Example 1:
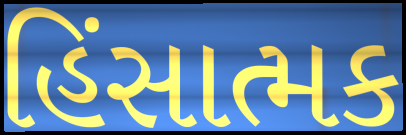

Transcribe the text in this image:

હિંસાત્મક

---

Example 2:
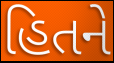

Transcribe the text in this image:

હિતને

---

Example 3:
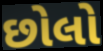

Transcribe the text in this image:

છોલો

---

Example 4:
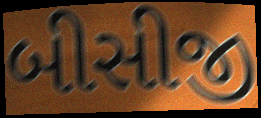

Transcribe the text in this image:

બીસીજી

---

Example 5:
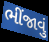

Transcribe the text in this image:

ભીંજાવું